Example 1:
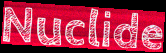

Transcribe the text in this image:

Nuclide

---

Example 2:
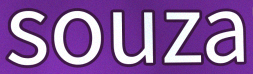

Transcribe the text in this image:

souza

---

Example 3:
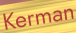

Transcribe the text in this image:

Kerman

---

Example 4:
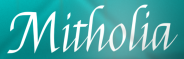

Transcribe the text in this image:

Mitholia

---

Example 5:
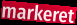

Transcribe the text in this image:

markeret